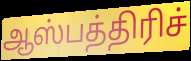
ஆஸ்பத்திரிச்